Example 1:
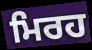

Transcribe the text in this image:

ਮਿਰਹ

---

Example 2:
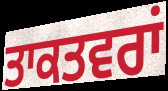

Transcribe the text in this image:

ਤਾਕਤਵਰਾਂ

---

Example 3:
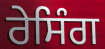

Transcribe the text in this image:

ਰੇਸਿੰਗ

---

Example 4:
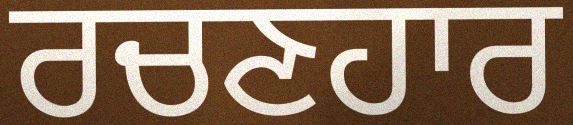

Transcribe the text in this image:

ਰਚਣਹਾਰ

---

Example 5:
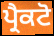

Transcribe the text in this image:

ਪ੍ਰੈਕਟੋ